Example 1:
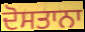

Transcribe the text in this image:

ਦੋਸਤਾਨਾ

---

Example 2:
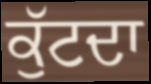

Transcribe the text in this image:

ਕੁੱਟਦਾ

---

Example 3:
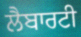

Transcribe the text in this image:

ਲੈਬਾਰਟੀ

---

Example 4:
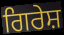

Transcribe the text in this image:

ਗਿਰੇਸ਼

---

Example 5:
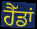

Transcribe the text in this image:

ਹੈੱਡਾਂ